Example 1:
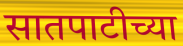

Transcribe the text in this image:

सातपाटीच्या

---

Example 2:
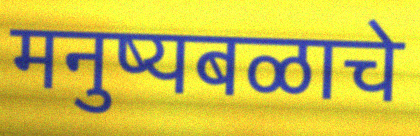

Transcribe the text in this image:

मनुष्यबळाचे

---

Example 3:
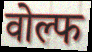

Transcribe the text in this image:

वोल्फ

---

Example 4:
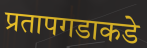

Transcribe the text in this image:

प्रतापगडाकडे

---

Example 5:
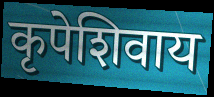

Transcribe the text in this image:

कृपेशिवाय